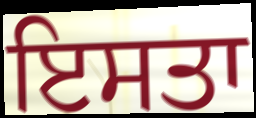
ਇਸਤਾ